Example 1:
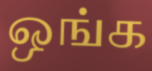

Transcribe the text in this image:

ஒங்க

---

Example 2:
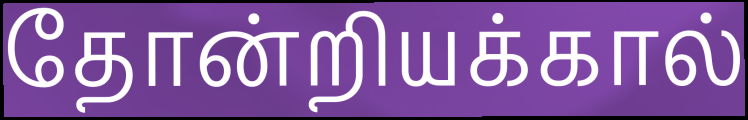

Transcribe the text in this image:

தோன்றியக்கால்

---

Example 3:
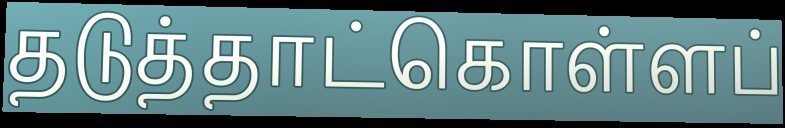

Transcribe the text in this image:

தடுத்தாட்கொள்ளப்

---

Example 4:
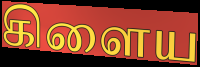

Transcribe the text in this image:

கிளைய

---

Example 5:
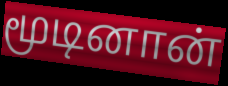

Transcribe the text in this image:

மூடினான்